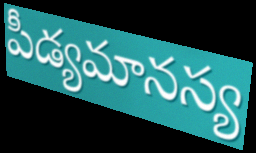
పీడ్యమానస్య